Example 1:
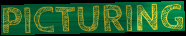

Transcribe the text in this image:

PICTURING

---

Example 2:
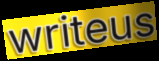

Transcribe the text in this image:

writeus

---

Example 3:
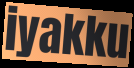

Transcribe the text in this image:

iyakku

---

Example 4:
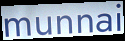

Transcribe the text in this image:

munnai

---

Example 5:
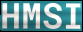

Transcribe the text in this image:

HMSI